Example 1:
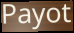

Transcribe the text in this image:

Payot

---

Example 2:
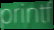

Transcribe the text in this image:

printf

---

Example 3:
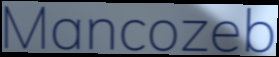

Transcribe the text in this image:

Mancozeb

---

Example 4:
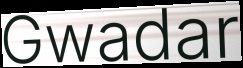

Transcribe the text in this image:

Gwadar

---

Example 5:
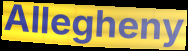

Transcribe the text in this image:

Allegheny